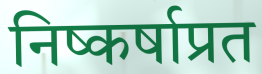
निष्कर्षाप्रत